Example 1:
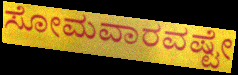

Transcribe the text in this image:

ಸೋಮವಾರವಷ್ಟೇ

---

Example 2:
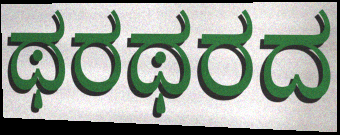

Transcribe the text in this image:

ಥರಥರದ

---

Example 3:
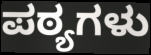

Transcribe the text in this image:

ಪಠ್ಯಗಳು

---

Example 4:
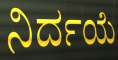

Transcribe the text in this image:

ನಿರ್ದಯೆ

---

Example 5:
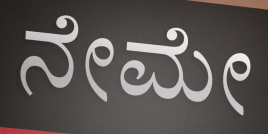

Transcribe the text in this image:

ನೇಮೇ